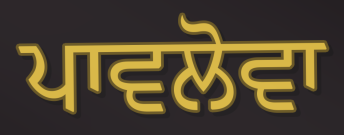
ਪਾਵਲੋਵਾ